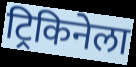
ट्रिकिनेला